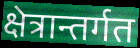
क्षेत्रान्‍तर्गत